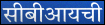
सीबीआयची